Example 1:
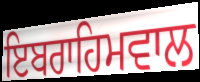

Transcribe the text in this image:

ਇਬਰਾਹਿਮਵਾਲ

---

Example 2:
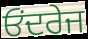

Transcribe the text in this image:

ਓਂਦਰੇਜ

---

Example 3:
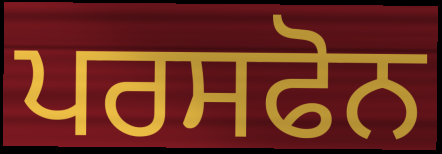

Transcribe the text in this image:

ਪਰਸਫੋਨ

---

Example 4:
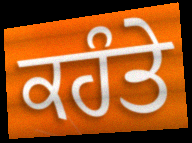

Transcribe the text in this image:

ਕਹੰਤੇ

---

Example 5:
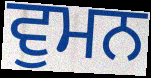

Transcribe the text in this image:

ਵੁਮਨ